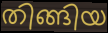
തിങ്ങിയ